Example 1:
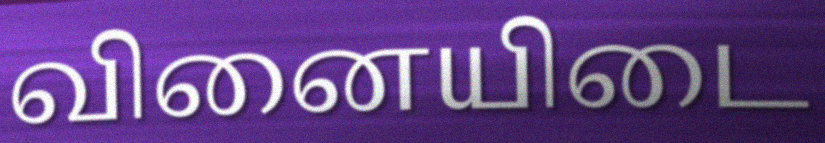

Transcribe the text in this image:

வினையிடை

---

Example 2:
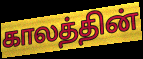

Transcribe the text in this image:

காலத்தின்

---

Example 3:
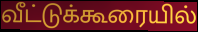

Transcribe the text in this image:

வீட்டுக்கூரையில்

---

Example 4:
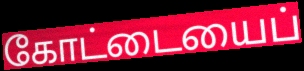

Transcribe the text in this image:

கோட்டையைப்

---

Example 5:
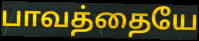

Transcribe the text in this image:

பாவத்தையே